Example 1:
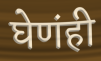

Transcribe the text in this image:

घेणंही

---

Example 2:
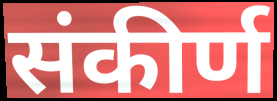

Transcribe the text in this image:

संकीर्ण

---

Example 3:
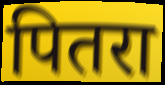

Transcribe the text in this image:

पितरा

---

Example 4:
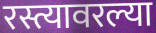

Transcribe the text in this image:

रस्त्यावरल्या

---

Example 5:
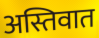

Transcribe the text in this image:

अस्तिवात